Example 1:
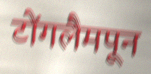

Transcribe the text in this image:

टोंगलैमपून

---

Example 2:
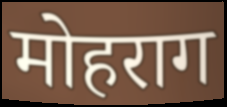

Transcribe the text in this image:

मोहराग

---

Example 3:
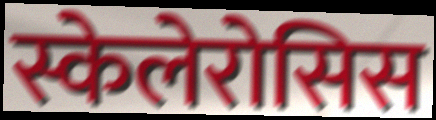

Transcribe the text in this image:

स्केलेरोसिस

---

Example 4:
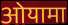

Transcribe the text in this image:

ओयामा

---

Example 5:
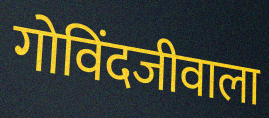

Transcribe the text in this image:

गोविंदजीवाला